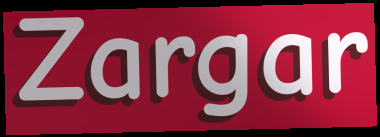
Zargar